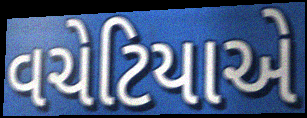
વચેટિયાએ